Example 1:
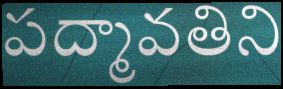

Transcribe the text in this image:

పద్మావతిని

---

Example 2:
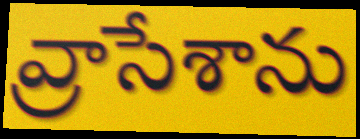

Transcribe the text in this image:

వ్రాసేశాను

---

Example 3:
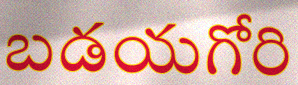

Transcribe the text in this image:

బడయగోరి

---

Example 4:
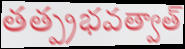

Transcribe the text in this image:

తత్ప్రభవత్వాత్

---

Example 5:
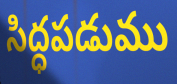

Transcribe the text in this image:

సిద్ధపడుము